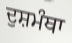
ਦੁਸ਼ਮੰਥਾ